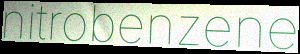
nitrobenzene